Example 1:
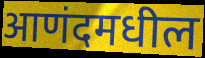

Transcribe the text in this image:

आणंदमधील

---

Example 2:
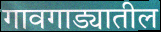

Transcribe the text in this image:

गावगाड्यातील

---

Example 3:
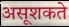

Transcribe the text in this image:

असूशकते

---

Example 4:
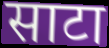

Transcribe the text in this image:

साटा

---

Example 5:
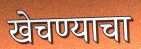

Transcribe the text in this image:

खेचण्याचा